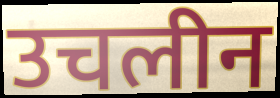
उचलीन